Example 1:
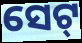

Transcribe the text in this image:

ସେଟ୍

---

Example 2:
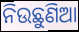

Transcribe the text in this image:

ନିଉଛୁଣିଆ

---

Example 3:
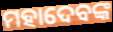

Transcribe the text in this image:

ମହାଦେବଙ୍କ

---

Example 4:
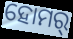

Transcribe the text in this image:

ହୋମର୍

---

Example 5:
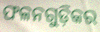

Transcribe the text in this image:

ଫଳନଗୁଡ଼ିକର